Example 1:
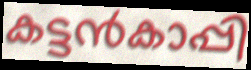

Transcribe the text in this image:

കട്ടൻകാപ്പി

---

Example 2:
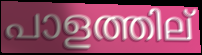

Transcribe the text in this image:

പാളത്തില്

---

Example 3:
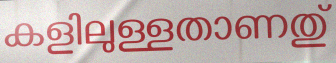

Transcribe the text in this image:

കളിലുള്ളതാണതു്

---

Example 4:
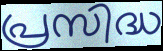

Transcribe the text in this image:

പ്രസിദ്ധ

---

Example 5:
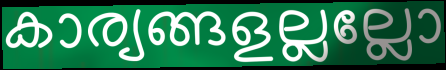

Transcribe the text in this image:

കാര്യങ്ങളല്ലല്ലോ